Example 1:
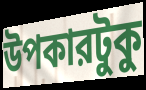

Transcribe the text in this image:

উপকারটুকু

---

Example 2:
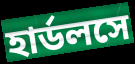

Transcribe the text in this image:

হার্ডলসে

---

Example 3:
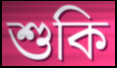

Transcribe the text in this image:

শুকি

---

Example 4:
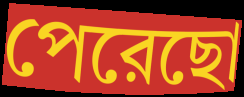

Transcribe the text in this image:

পেরেছো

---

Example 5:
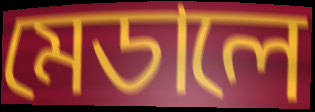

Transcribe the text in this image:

মেডালে